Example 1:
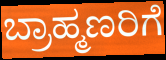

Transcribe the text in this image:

ಬ್ರಾಹ್ಮಣರಿಗೆ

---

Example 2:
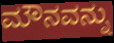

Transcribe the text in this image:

ಮೌನವನ್ನು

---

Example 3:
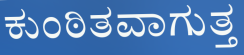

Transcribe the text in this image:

ಕುಂಠಿತವಾಗುತ್ತ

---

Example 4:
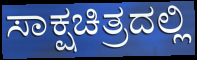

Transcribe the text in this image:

ಸಾಕ್ಷಚಿತ್ರದಲ್ಲಿ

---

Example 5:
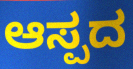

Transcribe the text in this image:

ಆಸ್ಪದ